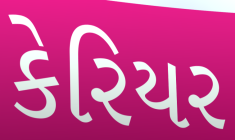
કેરિયર